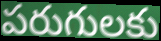
పరుగులకు